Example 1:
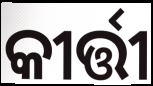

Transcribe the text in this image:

କୀର୍ତ୍ତୀ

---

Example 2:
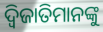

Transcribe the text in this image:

ଦ୍ୱିଜାତିମାନଙ୍କୁ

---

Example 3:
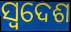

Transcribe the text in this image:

ସ୍ୱଦେଶ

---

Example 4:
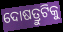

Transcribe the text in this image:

ଦୋଷତ୍ରୁଟିକୁ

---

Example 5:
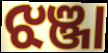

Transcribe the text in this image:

ଝଞ୍ଜା